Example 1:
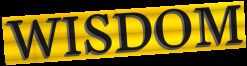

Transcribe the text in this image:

WISDOM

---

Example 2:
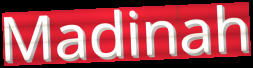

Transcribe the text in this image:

Madinah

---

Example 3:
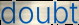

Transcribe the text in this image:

doubt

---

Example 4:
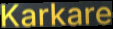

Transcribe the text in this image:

Karkare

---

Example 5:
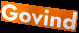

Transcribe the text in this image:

Govind